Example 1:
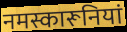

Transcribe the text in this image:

नमस्कारूनियां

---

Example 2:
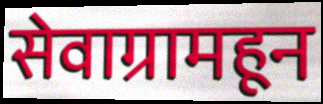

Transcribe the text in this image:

सेवाग्रामहून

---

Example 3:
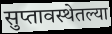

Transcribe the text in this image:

सुप्तावस्थेतल्या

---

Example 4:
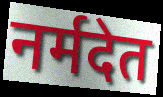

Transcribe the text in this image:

नर्मदेत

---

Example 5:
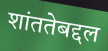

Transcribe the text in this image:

शांततेबद्दल